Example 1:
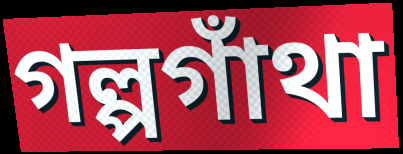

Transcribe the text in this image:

গল্পগাঁথা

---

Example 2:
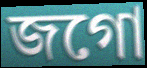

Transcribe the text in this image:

জগো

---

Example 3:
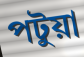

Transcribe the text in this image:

পটুয়া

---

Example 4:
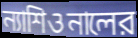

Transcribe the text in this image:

ন্যাশিওনালের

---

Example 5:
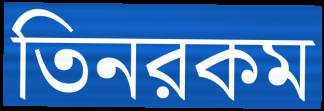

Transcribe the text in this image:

তিনরকম